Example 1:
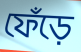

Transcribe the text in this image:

ফেঁড়ে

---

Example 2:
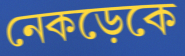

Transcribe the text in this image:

নেকড়েকে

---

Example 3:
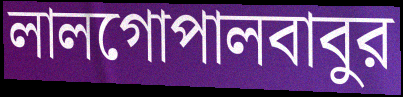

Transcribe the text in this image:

লালগোপালবাবুর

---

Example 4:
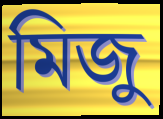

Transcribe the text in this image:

মিজু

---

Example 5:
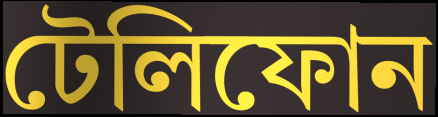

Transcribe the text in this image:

টেলিফোন